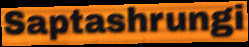
Saptashrungi